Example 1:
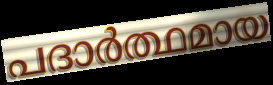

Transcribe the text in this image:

പദാർത്ഥമായ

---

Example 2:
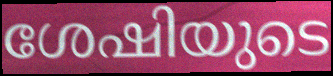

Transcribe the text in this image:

ശേഷിയുടെ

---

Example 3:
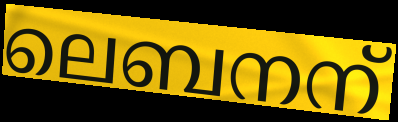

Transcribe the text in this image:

ലെബനന്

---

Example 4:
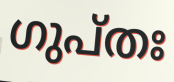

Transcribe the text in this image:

ഗുപ്തഃ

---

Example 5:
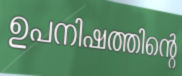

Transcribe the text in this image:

ഉപനിഷത്തിന്റെ